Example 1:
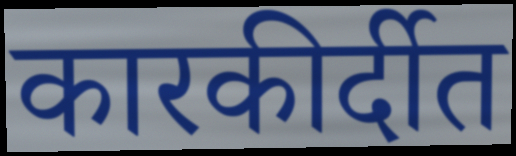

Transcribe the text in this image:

कारकीर्दीत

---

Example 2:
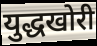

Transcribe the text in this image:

युद्धखोरी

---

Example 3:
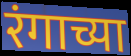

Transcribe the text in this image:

रंगाच्या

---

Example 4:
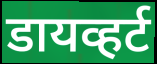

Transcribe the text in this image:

डायव्हर्ट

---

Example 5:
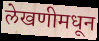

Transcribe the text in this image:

लेखणीमधून